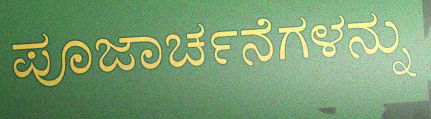
ಪೂಜಾರ್ಚನೆಗಳನ್ನು